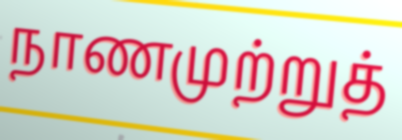
நாணமுற்றுத்